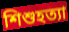
শিশুহত্যা